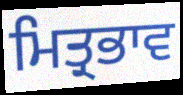
ਮਿਤ੍ਰਭਾਵ